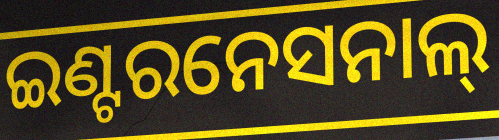
ଇଣ୍ଟରନେସନାଲ୍